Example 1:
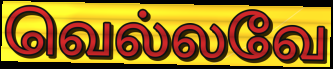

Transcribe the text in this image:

வெல்லவே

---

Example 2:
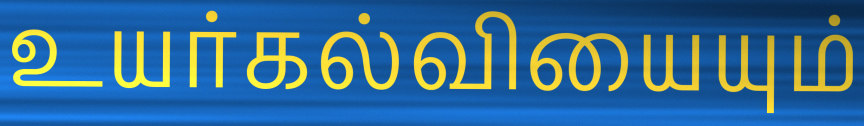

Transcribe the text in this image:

உயர்கல்வியையும்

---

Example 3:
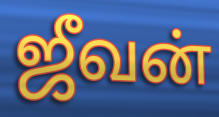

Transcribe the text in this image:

ஜீவன்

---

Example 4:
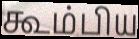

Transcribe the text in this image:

கூம்பிய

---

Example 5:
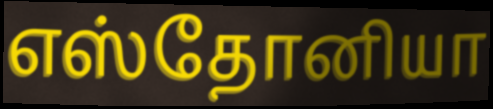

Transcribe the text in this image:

எஸ்தோனியா